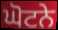
ਘੋਟਨੇ